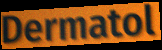
Dermatol